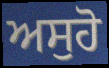
ਅਸੁਹੋ